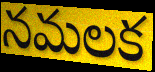
నమలక